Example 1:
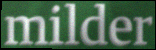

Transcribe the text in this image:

milder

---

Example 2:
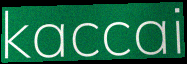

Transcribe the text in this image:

kaccai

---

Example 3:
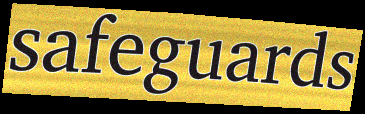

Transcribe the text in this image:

safeguards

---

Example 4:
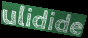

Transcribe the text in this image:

ulidide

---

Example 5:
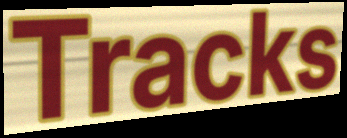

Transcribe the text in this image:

Tracks